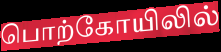
பொற்கோயிலில்